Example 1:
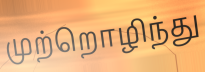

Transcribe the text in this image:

முற்றொழிந்து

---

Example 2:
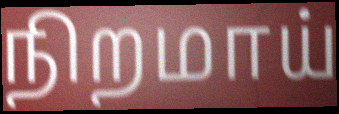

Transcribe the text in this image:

நிறமாய்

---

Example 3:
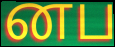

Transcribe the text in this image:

னப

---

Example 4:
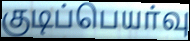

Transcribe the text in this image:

குடிப்பெயர்வு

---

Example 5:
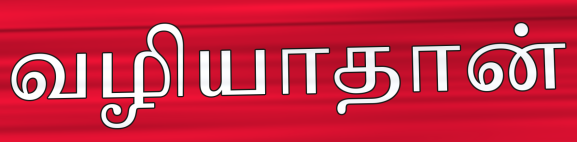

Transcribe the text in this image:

வழியாதான்